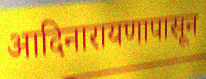
आदिनारायणापासून